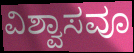
ವಿಶ್ವಾಸವೂ